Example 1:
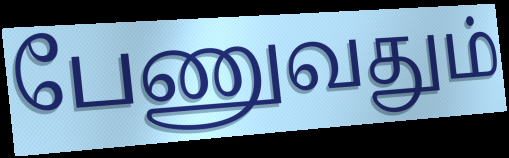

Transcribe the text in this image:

பேணுவதும்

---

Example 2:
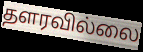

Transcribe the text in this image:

தளரவில்லை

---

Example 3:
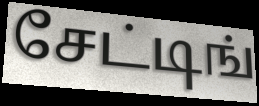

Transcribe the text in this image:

சேட்டிங்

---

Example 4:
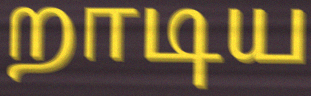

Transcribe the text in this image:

றாடிய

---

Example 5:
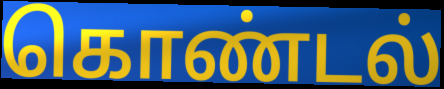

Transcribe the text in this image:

கொண்டல்